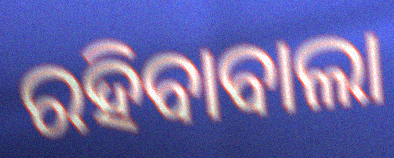
ରହିବାବାଲା